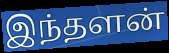
இந்தளன்